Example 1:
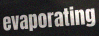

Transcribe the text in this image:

evaporating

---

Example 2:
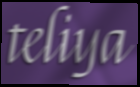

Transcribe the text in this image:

teliya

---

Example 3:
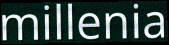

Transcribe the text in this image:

millenia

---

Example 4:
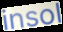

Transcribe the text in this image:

insol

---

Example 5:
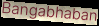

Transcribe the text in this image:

Bangabhaban